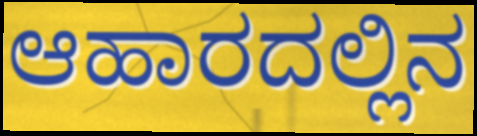
ಆಹಾರದಲ್ಲಿನ